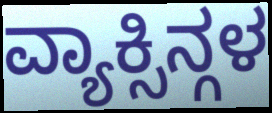
ವ್ಯಾಕ್ಸಿನ್ಗಳ